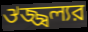
ঔজ্জ্বল্যর